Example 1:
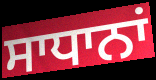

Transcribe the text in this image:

ਸਾਧਾਨਾਂ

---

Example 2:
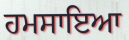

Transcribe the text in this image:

ਹਮਸਾਇਆ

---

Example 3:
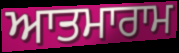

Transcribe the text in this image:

ਆਤਮਾਰਾਮ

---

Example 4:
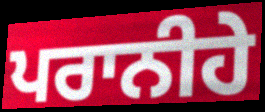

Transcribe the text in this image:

ਪਰਾਨੀਹੇ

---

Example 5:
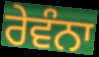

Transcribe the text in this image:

ਰੇਵੰਨਾ